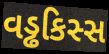
વડ્ઢકિસ્સ